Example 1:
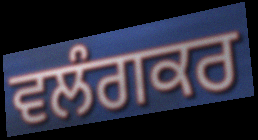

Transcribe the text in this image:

ਵਲੰਗਕਰ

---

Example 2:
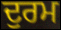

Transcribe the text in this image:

ਦੁਰਮ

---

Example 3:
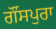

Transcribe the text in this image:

ਗੌਂਸਪੁਰਾ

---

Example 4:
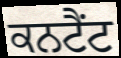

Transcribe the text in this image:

ਕਨਟੈਂਟ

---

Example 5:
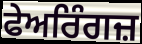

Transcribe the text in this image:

ਫੇਅਰਿੰਗਜ਼